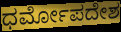
ಧರ್ಮೋಪದೇಶ